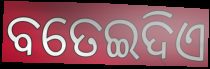
ବତେଇଦିଏ